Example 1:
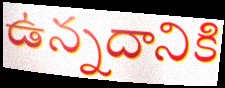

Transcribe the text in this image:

ఉన్నదానికి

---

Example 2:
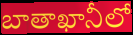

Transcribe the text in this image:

బాతాఖానీలో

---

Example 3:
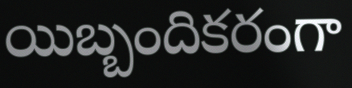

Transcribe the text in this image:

యిబ్బందికరంగా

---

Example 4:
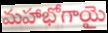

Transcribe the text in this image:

మహాభోగాయై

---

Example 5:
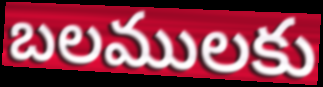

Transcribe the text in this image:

బలములకు